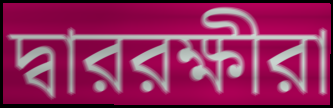
দ্বাররক্ষীরা